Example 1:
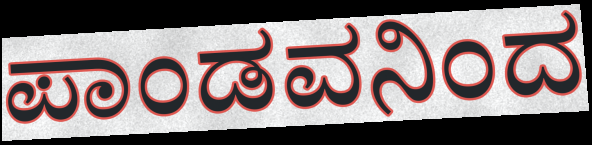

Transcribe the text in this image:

ಪಾಂಡವನಿಂದ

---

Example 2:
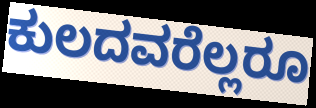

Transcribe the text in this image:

ಕುಲದವರೆಲ್ಲರೂ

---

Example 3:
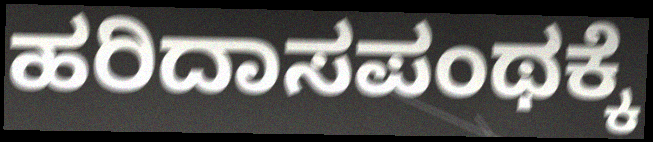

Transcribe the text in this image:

ಹರಿದಾಸಪಂಥಕ್ಕೆ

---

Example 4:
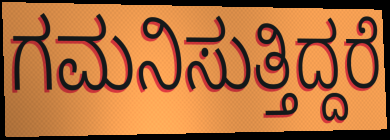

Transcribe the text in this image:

ಗಮನಿಸುತ್ತಿದ್ದರೆ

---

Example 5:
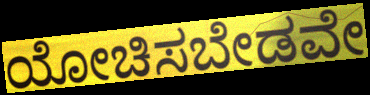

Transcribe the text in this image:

ಯೋಚಿಸಬೇಡವೇ